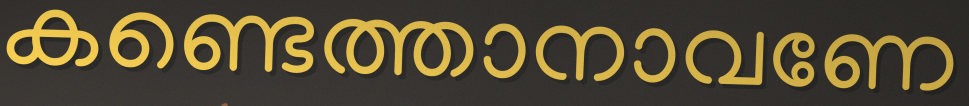
കണ്ടെത്താനാവണേ